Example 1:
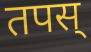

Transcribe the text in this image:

तपस्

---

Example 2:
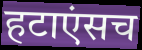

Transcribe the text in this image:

हटाएंसच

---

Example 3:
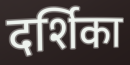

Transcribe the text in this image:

दर्शिका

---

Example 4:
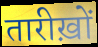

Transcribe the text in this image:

तारीख़ों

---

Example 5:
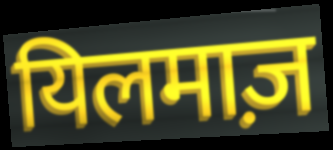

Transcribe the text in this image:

यिलमाज़